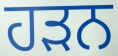
ਹੜਨ